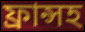
ফ্রান্সহ